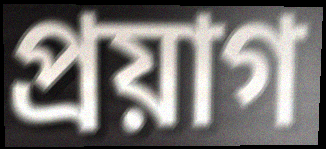
প্রয়াগ